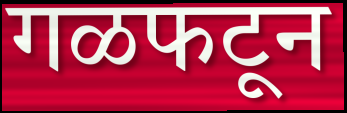
गळफटून